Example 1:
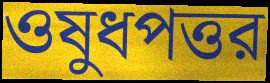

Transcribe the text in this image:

ওষুধপত্তর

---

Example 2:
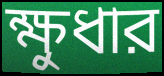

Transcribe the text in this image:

ক্ষুধার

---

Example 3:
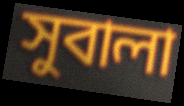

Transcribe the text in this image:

সুবালা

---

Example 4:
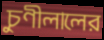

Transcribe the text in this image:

চুণীলালের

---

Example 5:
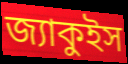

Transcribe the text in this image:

জ্যাকুইস